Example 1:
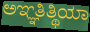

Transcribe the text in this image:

ಅಞ್ಞತಿತ್ಥಿಯಾ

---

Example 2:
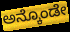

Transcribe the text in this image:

ಅನ್ಕೊಂಡೇ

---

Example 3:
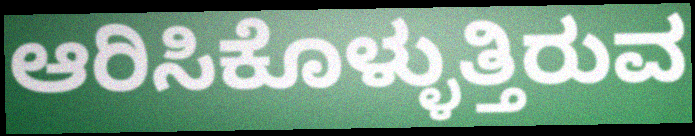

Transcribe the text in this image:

ಆರಿಸಿಕೊಳ್ಳುತ್ತಿರುವ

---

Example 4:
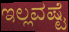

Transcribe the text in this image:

ಇಲ್ಲವಷ್ಟೆ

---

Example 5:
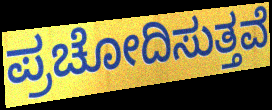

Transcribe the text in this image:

ಪ್ರಚೋದಿಸುತ್ತವೆ